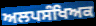
ਅਲਪਸੰਖਿਅਕ